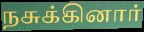
நசுக்கினார்